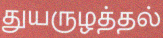
துயருழத்தல்